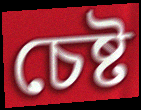
চেষ্ট